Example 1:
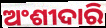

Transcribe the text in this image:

ଅଂଶୀଦାରି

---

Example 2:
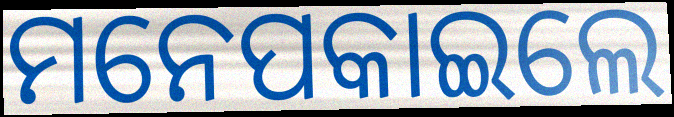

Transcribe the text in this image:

ମନେପକାଇଲେ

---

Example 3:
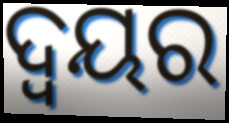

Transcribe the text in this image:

ଦ୍ଵୟର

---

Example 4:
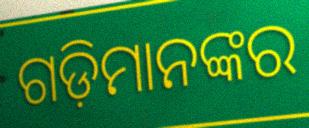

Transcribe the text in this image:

ଗଡ଼ିମାନଙ୍କର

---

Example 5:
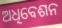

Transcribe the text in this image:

ଅଧିବେଶନ